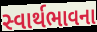
સ્વાર્થભાવના